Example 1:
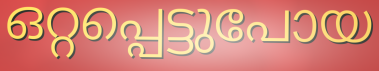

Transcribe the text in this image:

ഒറ്റപ്പെട്ടുപോയ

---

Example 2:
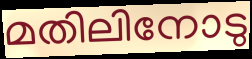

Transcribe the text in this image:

മതിലിനോടു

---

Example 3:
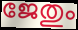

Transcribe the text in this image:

ജേതും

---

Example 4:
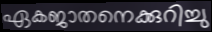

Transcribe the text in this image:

ഏകജാതനെക്കുറിച്ചു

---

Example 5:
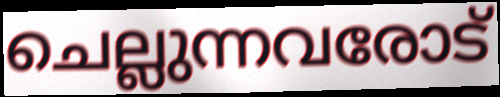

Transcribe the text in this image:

ചെല്ലുന്നവരോട്